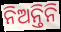
ନିଅନ୍ତିନି